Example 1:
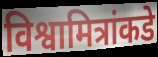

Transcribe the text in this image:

विश्वामित्रांकडे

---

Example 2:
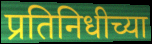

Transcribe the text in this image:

प्रतिनिधीच्या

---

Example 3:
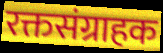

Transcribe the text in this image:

रक्तसंग्राहक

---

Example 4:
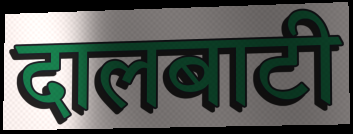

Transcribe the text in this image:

दालबाटी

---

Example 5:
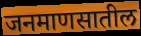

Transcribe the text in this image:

जनमाणसातील